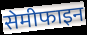
सेमीफाइन